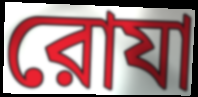
রোযা